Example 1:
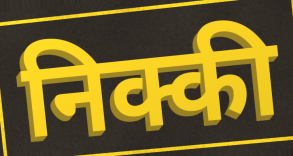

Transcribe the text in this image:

निक्की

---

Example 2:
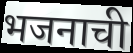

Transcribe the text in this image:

भजनाची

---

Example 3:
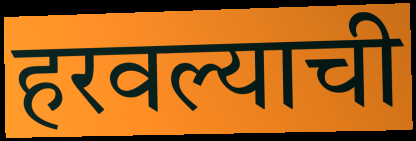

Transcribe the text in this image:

हरवल्याची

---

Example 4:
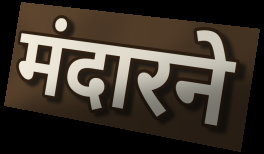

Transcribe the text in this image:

मंदारने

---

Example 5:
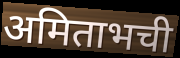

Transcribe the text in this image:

अमिताभची